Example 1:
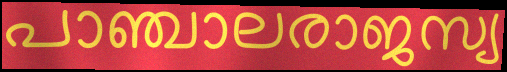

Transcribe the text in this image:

പാഞ്ചാലരാജസ്യ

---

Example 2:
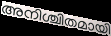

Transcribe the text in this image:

അനിശ്ചിതമായി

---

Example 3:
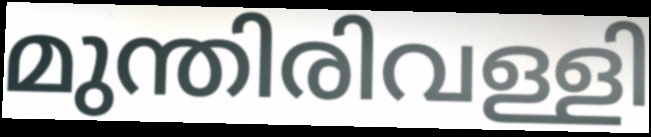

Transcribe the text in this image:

മുന്തിരിവള്ളി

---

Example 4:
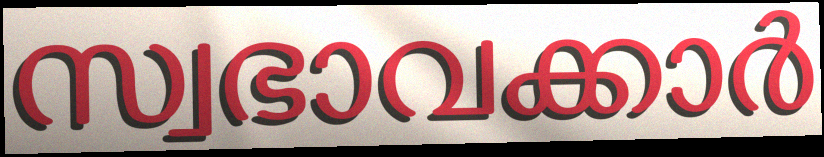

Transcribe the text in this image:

സ്വഭാവക്കാർ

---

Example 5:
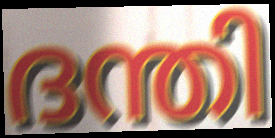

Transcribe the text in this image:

ദന്തി